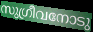
സുഗ്രീവനോടു